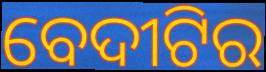
ବେଦୀଟିର